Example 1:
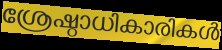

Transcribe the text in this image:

ശ്രേഷ്ഠാധികാരികൾ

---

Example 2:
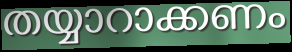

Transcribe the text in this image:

തയ്യാറാക്കണം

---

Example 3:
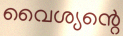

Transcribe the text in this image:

വൈശ്യന്റെ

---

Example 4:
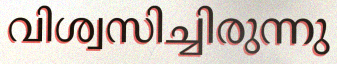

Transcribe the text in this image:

വിശ്വസിച്ചിരുന്നു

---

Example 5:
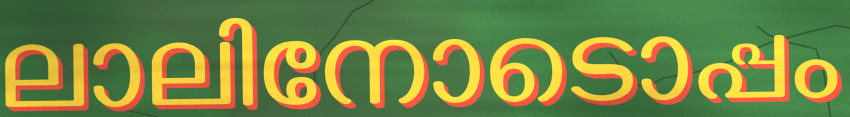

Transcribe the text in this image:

ലാലിനോടൊപ്പം